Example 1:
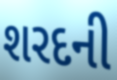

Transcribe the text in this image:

શરદની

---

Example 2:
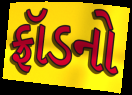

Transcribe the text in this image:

ફ્રૉડનો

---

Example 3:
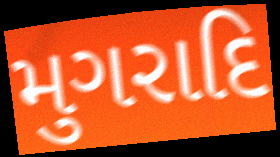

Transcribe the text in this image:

મુગરાદિ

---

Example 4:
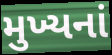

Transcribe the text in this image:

મુખ્યનાં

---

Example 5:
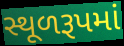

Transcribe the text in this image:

સ્થૂળરૂપમાં